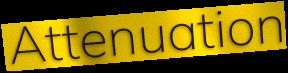
Attenuation